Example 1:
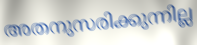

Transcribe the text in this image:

അതനുസരിക്കുന്നില്ല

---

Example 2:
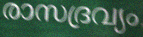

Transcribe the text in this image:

രാസദ്രവ്യം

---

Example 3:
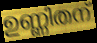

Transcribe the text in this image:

ഉണ്ണിതന്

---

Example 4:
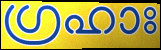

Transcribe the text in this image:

ഗ്രഹാഃ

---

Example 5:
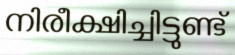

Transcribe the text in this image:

നിരീക്ഷിച്ചിട്ടുണ്ട്